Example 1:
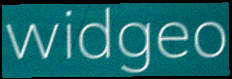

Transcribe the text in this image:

widgeo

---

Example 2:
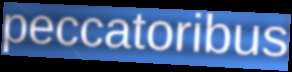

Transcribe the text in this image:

peccatoribus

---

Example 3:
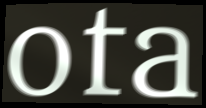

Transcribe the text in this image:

ota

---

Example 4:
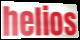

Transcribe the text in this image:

helios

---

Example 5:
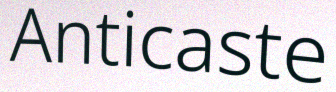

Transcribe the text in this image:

Anticaste